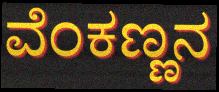
ವೆಂಕಣ್ಣನ